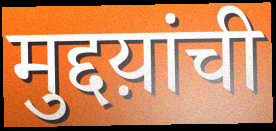
मुद्दय़ांची